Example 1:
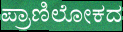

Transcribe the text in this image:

ಪ್ರಾಣಿಲೋಕದ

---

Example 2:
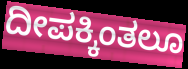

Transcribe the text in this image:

ದೀಪಕ್ಕಿಂತಲೂ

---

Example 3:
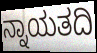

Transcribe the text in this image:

ನ್ನಾಯತದಿ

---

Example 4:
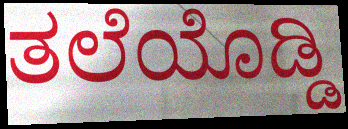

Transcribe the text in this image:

ತಲೆಯೊಡ್ಡಿ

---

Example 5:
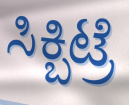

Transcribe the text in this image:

ಸಿಕ್ಬಿಟ್ರೆ